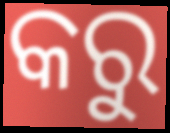
କରୁ